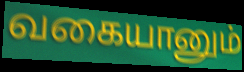
வகையானும்